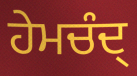
ਹੇਮਚੰਦ੍